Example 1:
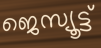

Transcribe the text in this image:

ജെസ്യൂട്ട്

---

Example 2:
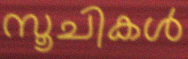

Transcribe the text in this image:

സൂചികൾ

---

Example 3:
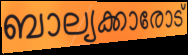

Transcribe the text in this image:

ബാല്യക്കാരോട്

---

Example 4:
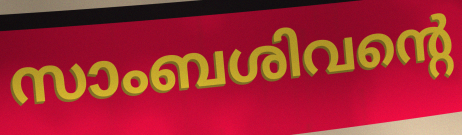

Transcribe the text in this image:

സാംബശിവന്റെ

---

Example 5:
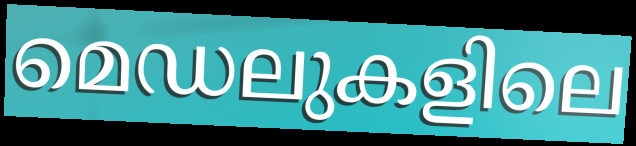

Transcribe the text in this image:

മെഡലുകളിലെ